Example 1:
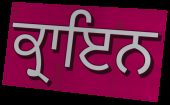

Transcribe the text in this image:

ਕ੍ਰਾਇਨ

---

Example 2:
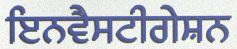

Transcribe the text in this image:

ਇਨਵੈਸਟੀਗੇਸ਼ਨ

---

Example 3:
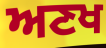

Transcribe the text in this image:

ਅਣਖ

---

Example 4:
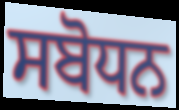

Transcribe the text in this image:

ਸਬੋਧਨ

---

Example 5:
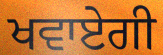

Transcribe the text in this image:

ਖਵਾਏਗੀ